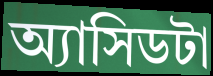
অ্যাসিডটা